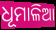
ଧୂମାଳିଆ